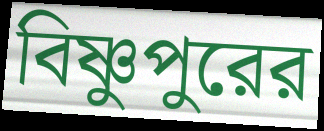
বিষ্ণুপুরের